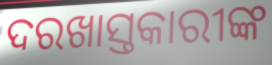
ଦରଖାସ୍ତକାରୀଙ୍କ